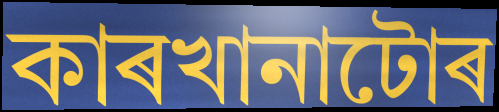
কাৰখানাটোৰ